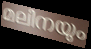
മലിനയും